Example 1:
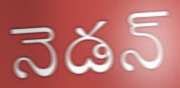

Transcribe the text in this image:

నెడన్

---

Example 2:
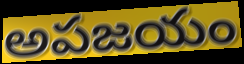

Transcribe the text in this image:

అపజయం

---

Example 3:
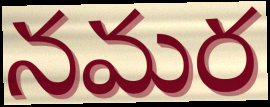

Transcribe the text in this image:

నమర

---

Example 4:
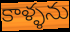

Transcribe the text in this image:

కాళ్ళను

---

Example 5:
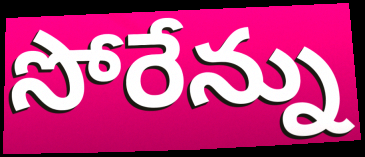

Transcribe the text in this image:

సోరేన్ను